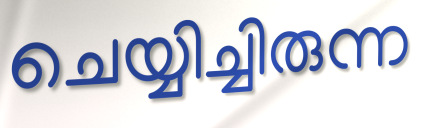
ചെയ്യിച്ചിരുന്ന